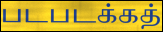
படபடக்கத்